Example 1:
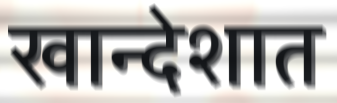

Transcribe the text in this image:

खान्देशात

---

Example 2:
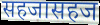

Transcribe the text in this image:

सहजासहज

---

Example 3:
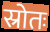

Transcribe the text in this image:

स्रोतः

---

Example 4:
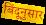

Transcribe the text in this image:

बिंदूनुसार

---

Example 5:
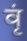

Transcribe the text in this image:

वृं